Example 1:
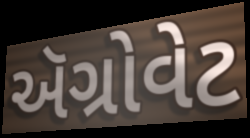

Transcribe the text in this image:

ઍગ્રોવેટ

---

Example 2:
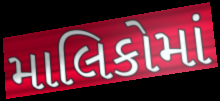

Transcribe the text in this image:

માલિકોમાં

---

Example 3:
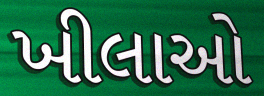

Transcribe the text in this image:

ખીલાઓ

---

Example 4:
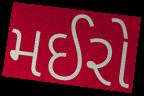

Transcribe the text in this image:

મઈરો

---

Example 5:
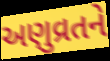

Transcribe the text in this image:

અણુવ્રતને